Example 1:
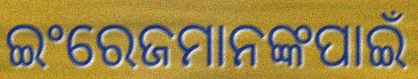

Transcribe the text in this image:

ଇଂରେଜମାନଙ୍କପାଇଁ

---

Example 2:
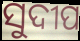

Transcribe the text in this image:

ସୁଦୀପ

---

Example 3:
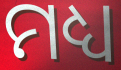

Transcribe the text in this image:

ମଧ୍ୟ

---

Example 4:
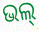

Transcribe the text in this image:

ଭଲ୍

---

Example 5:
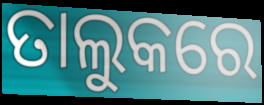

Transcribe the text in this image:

ତାଲୁକରେ